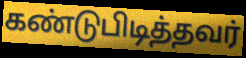
கண்டுபிடித்தவர்